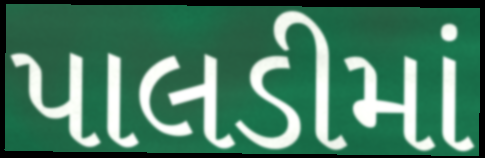
પાલડીમાં